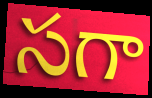
సగా